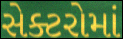
સેક્ટરોમાં